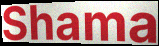
Shama